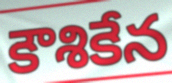
కౌశికేన